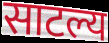
साटल्य